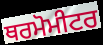
ਥਰਮੋਮੀਟਰ